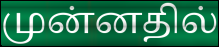
முன்னதில்